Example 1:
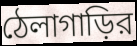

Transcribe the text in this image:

ঠেলাগাড়ির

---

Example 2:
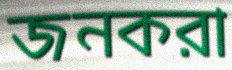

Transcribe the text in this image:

জনকরা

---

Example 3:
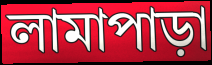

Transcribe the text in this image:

লামাপাড়া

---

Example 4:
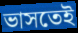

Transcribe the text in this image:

ভাসতেই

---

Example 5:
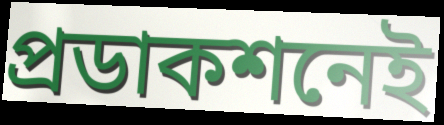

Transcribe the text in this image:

প্রডাকশনেই